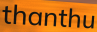
thanthu